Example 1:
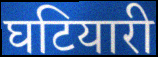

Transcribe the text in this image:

घटियारी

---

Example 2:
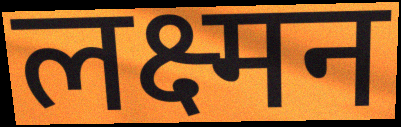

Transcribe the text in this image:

लक्ष्मन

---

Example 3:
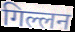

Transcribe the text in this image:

गिल्लन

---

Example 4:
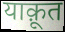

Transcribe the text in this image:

याक़ूत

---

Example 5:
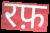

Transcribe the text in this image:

रफ़